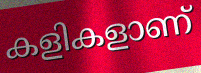
കളികളാണ്